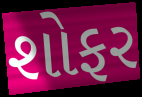
શોફર